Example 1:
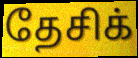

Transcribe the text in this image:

தேசிக்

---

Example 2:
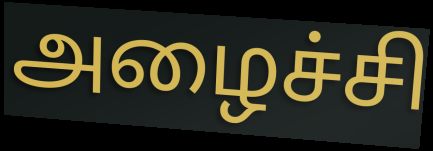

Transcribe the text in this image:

அழைச்சி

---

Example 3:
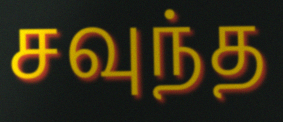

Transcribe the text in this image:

சவுந்த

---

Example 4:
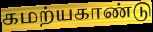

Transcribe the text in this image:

கமற்யகாண்டு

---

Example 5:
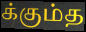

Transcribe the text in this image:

க்கும்த